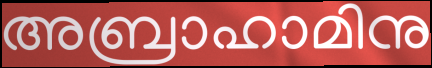
അബ്രാഹാമിനു